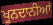
ਖੂਨਦਾਨੀਆਂ